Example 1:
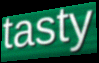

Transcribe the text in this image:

tasty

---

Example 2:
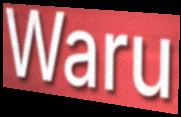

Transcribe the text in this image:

Waru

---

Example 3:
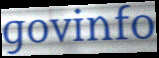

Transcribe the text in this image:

govinfo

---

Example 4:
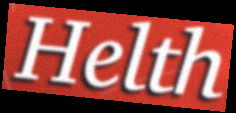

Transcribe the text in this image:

Helth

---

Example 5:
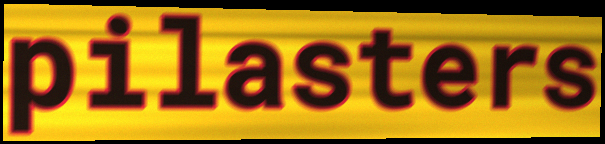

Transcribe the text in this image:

pilasters